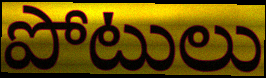
పోటులు